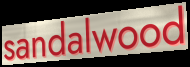
sandalwood